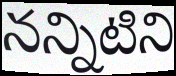
నన్నిటిని